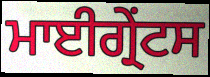
ਮਾਈਗ੍ਰੇਂਟਸ